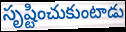
సృష్టించుకుంటాడు